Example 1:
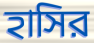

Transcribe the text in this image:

হাসির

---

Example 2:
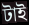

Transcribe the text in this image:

টাই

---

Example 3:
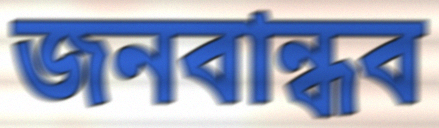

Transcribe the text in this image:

জনবান্ধব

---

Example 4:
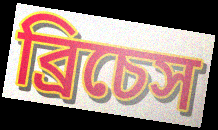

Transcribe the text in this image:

ব্রিচেস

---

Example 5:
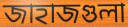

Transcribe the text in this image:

জাহাজগুলা